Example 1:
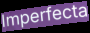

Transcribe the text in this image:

Imperfecta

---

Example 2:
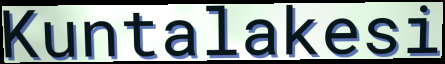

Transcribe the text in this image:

Kuntalakesi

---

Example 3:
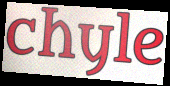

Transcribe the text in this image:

chyle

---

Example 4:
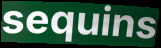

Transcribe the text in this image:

sequins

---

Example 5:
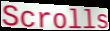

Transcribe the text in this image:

Scrolls